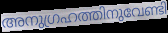
അനുഗ്രഹത്തിനുവേണ്ടി